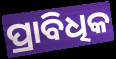
ପ୍ରାବିଧିକ